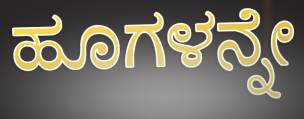
ಹೂಗಳನ್ನೇ